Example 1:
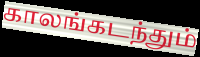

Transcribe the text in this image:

காலங்கடந்தும்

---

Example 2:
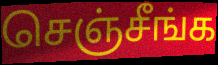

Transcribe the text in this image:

செஞ்சீங்க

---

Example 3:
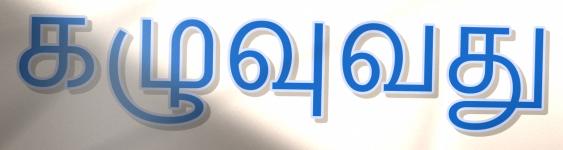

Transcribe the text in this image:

கழுவுவது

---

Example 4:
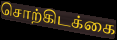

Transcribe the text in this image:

சொற்கிடக்கை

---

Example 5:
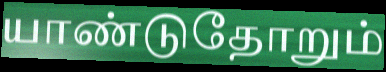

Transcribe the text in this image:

யாண்டுதோறும்